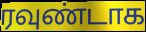
ரவுண்டாக